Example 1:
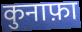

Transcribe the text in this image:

कुनाफ़ा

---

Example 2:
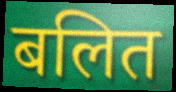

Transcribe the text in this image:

बलित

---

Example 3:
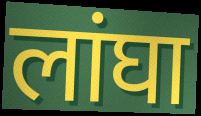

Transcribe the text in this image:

लांघा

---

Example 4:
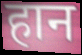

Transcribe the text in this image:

हान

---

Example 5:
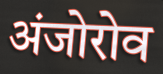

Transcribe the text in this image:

अंजोरोव